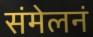
संमेलनं